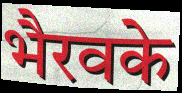
भैरवके